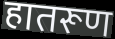
हातरूण